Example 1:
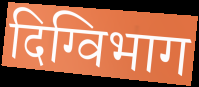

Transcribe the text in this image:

दिग्विभाग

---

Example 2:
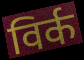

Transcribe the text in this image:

विर्क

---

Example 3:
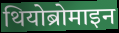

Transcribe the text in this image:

थियोब्रोमाइन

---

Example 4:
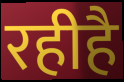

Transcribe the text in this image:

रहीहै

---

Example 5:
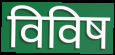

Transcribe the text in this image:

विविष